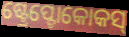
ଷ୍ଟ୍ରେପ୍ଟୋକୋକସ୍